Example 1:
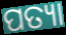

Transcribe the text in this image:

ପତ୍ୟା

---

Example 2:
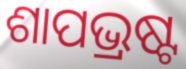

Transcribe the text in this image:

ଶାପଭ୍ରଷ୍ଟ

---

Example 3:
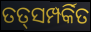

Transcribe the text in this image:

ତତ୍‌ସମ୍ପର୍କିତ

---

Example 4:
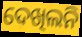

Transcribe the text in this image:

ଦେଖିଲନି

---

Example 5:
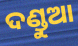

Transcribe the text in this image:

ଦଣ୍ଡୁଆ